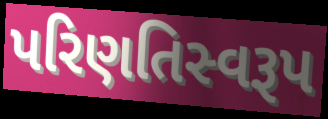
પરિણતિસ્વરૂપ